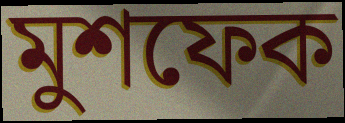
মুশফেক